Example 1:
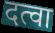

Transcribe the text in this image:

दत्वा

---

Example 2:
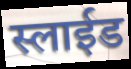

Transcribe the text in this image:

स्लाईड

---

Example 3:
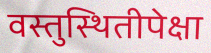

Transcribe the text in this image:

वस्तुस्थितीपेक्षा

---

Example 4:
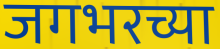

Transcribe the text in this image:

जगभरच्या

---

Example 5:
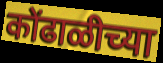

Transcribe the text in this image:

कोंढाळीच्या